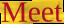
Meet